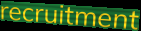
recruitment